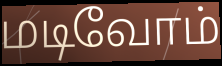
மடிவோம்